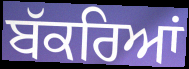
ਬੱਕਰਿਆਂ